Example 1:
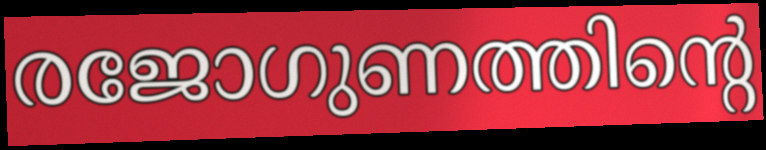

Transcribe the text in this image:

രജോഗുണത്തിന്റെ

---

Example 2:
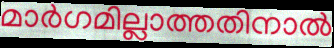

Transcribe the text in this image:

മാർഗമില്ലാത്തതിനാൽ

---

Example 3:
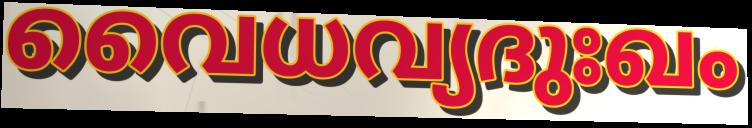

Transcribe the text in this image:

വൈധവ്യദുഃഖം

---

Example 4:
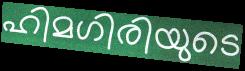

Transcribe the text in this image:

ഹിമഗിരിയുടെ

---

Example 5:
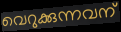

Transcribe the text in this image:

വെറുക്കുന്നവന്